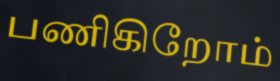
பணிகிறோம்